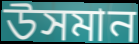
উসমান